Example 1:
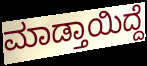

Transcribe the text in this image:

ಮಾಡ್ತಾಯಿದ್ದೆ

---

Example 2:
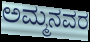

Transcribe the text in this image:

ಅಮ್ಮನವರ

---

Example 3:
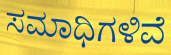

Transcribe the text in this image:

ಸಮಾಧಿಗಳಿವೆ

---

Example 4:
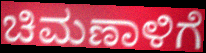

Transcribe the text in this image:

ಚಿಮಣಾಳಿಗೆ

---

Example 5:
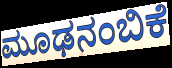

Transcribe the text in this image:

ಮೂಢನಂಬಿಕೆ